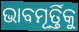
ଭାବମୂର୍ତ୍ତିକୁ